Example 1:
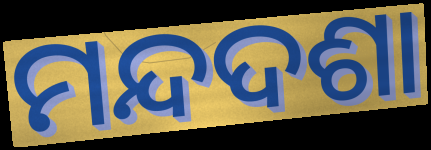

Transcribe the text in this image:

ମନ୍ଦଦଶା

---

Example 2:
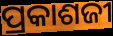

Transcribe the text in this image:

ପ୍ରକାଶଜୀ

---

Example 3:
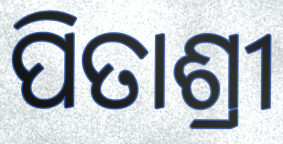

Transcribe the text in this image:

ପିତାଶ୍ରୀ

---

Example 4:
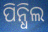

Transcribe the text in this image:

ପିନ୍ଧିଲ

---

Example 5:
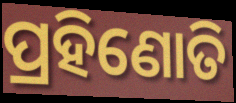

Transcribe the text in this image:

ପ୍ରହିଣୋତି